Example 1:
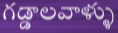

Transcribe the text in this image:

గడ్డాలవాళ్ళు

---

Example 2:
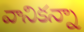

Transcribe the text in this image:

వానికన్నా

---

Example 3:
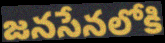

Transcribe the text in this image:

జనసేనలోకి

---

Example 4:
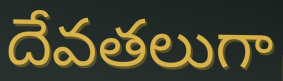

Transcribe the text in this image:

దేవతలుగా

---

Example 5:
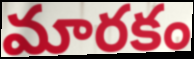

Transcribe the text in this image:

మారకం